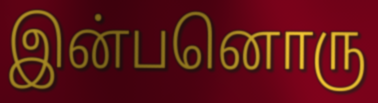
இன்பனொரு